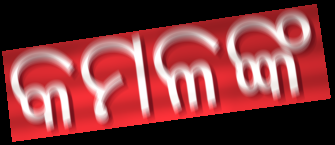
କମଳଙ୍କ